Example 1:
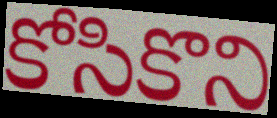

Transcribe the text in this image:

కోసికొని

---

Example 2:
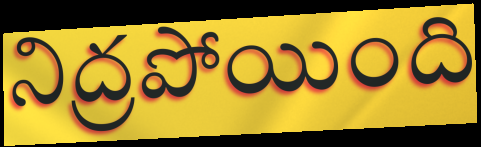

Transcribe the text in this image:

నిద్రపోయింది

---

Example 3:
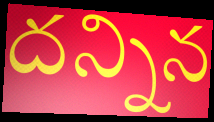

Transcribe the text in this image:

దన్నిన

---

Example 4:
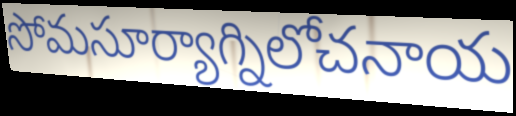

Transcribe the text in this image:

సోమసూర్యాగ్నిలోచనాయ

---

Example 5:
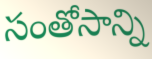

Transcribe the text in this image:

సంతోసాన్ని